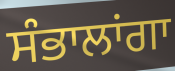
ਸੰਭਾਲਾਂਗਾ